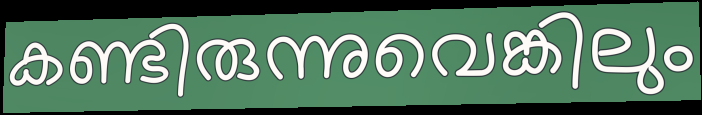
കണ്ടിരുന്നുവെങ്കിലും